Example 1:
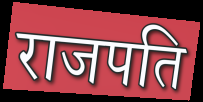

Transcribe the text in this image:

राजपति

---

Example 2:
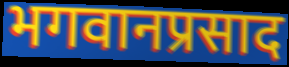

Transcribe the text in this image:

भगवानप्रसाद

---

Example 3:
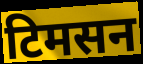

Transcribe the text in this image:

टिमसन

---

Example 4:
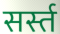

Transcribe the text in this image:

सर्स्त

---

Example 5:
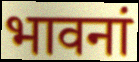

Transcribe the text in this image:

भावनां